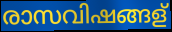
രാസവിഷങ്ങള്